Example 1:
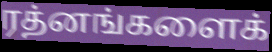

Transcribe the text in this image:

ரத்னங்களைக்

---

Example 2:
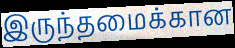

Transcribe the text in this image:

இருந்தமைக்கான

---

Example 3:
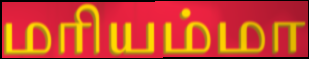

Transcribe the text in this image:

மரியம்மா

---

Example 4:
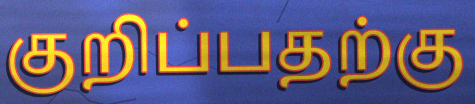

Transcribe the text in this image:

குறிப்பதற்கு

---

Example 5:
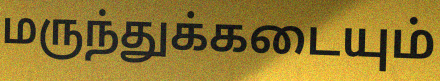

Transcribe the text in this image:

மருந்துக்கடையும்